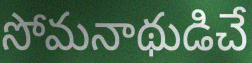
సోమనాథుడిచే